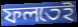
ফলতেই